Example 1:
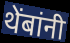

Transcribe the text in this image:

थेंबांनी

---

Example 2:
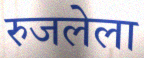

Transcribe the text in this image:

रुजलेला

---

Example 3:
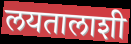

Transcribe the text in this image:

लयतालाशी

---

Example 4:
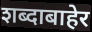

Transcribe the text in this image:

शब्दाबाहेर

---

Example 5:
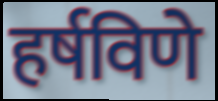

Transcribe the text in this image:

हर्षविणे